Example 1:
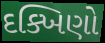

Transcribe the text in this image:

દક્ખિણો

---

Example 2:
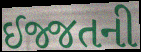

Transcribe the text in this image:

ઈજ્જતની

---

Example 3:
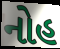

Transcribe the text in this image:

નોહ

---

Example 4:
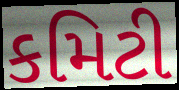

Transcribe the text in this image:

કમિટી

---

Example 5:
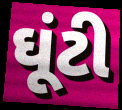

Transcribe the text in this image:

ઘૂંટી